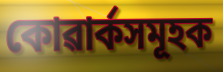
কোৱাৰ্কসমূহক